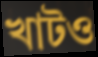
খাটও